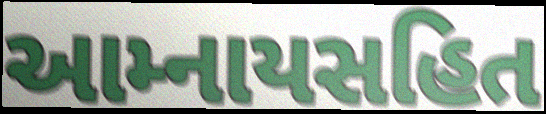
આમ્નાયસહિત